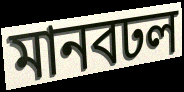
মানবঢল